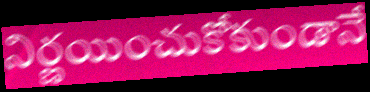
నిర్ణయించుకోకుండానే